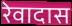
रेवादास